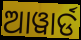
ଆୱାର୍ଡ